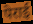
पेराई